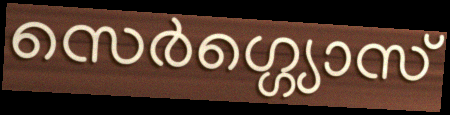
സെർഗ്ഗ്യൊസ്